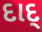
દાદ્